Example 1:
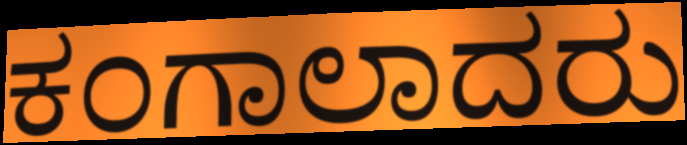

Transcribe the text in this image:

ಕಂಗಾಲಾದರು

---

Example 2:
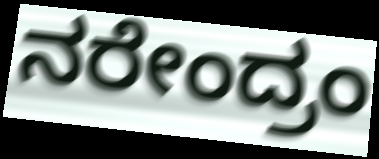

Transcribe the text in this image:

ನರೇಂದ್ರಂ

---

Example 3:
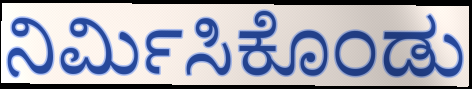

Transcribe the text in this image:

ನಿರ್ಮಿಸಿಕೊಂಡು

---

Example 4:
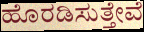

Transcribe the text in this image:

ಹೊರಡಿಸುತ್ತೇವೆ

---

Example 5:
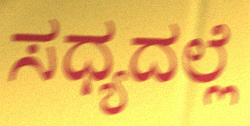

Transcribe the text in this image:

ಸಧ್ಯದಲ್ಲೆ